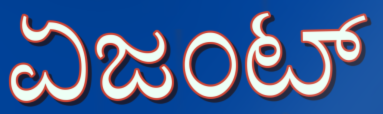
ಏಜಂಟ್